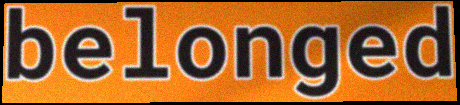
belonged